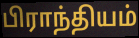
பிராந்தியம்